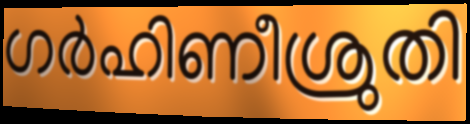
ഗർഹിണീശ്രുതി